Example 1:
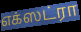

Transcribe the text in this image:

எக்ஸட்ரா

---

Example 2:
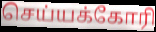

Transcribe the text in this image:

செய்யக்கோரி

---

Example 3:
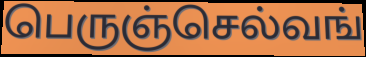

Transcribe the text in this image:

பெருஞ்செல்வங்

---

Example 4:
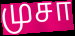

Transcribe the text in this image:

முசா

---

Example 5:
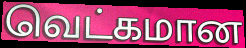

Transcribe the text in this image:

வெட்கமான